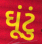
ઘૂંટું